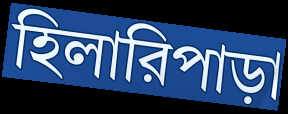
হিলারিপাড়া